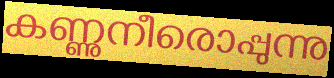
കണ്ണുനീരൊപ്പുന്നു